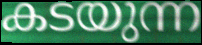
കടയുന്ന